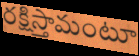
రక్షిస్తామంటూ